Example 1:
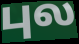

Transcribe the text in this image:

புல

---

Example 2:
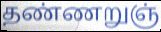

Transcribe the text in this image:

தண்ணறுஞ்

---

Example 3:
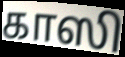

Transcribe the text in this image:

காஸி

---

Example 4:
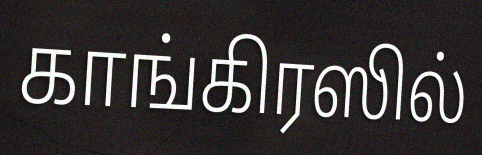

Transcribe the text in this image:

காங்கிரஸில்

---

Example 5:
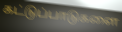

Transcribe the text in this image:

கட்டுப்பாடுகளை